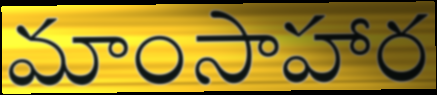
మాంసాహార